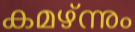
കമഴ്ന്നും